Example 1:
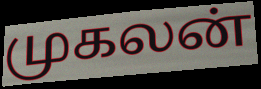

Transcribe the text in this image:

முகலன்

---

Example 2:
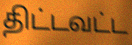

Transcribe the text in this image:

திட்டவட்ட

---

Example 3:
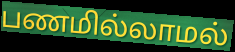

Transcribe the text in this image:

பணமில்லாமல்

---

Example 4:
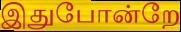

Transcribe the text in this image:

இதுபோன்றே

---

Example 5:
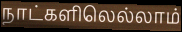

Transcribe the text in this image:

நாட்களிலெல்லாம்